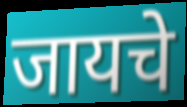
जायचे